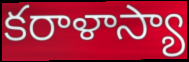
కరాళాస్యా